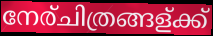
നേര്ചിത്രങ്ങള്ക്ക്